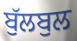
ਬੁੱਲਬੁਲ